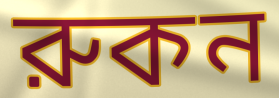
ৰুকন